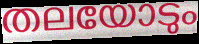
തലയോടും